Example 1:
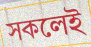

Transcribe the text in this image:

সকলেই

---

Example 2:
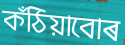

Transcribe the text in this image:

কঁঠিয়াবোৰ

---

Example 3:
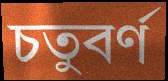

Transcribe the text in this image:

চতুবৰ্ণ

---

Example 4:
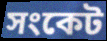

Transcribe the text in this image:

সংকেট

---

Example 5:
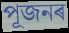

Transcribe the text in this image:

পূজনৰ